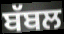
ਬੱਬਲ